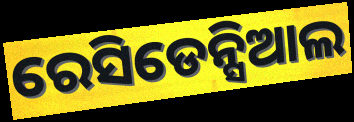
ରେସିଡେନ୍ସିଆଲ